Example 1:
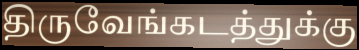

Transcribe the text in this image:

திருவேங்கடத்துக்கு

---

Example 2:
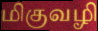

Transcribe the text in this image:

மிகுவழி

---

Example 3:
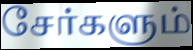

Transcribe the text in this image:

சேர்களும்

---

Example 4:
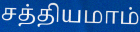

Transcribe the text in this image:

சத்தியமாம்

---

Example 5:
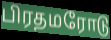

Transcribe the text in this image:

பிரதமரோடு